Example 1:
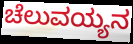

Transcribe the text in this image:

ಚೆಲುವಯ್ಯನ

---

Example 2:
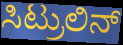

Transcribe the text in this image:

ಸಿಟ್ರುಲಿನ್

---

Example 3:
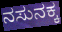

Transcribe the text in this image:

ನಸುನಕ್ಕ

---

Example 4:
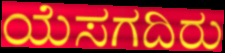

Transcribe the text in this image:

ಯೆಸಗದಿರು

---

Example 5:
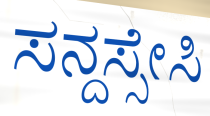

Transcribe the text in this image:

ಸನ್ದಸ್ಸೇಸಿ